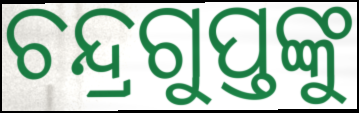
ଚନ୍ଦ୍ରଗୁପ୍ତଙ୍କୁ